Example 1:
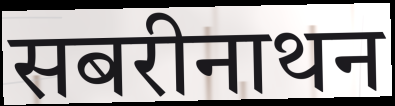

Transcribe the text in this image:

सबरीनाथन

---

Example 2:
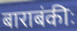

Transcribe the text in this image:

बाराबंकीः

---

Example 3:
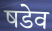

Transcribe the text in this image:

षडेव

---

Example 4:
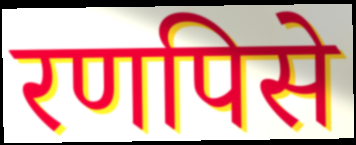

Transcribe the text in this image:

रणपिसे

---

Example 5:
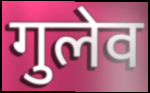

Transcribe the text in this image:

गुलेव